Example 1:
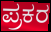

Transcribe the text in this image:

ಪ್ರಕರ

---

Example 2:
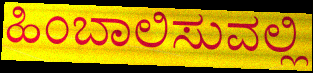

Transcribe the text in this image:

ಹಿಂಬಾಲಿಸುವಲ್ಲಿ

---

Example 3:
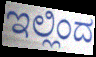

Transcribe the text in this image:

ಇಲ್ಲಿಂದ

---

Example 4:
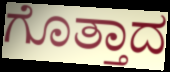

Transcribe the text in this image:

ಗೊತ್ತಾದ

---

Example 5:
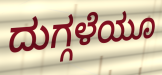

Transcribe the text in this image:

ದುಗ್ಗಳೆಯೂ